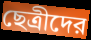
ছেত্রীদের